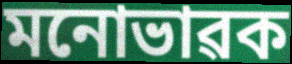
মনোভাৱক